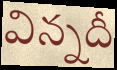
విన్నదీ